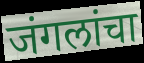
जंगलांचा